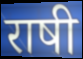
राषी